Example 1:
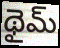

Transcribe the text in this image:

థైమ్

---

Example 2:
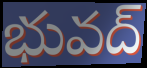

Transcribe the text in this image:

భువద్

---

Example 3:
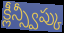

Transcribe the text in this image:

క్లీన్స్వీప్కు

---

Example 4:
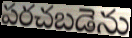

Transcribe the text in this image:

పరచబడెను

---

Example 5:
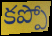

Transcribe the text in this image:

కప్పో